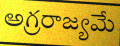
అగ్రరాజ్యమే